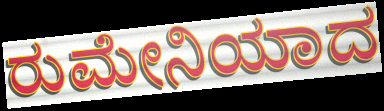
ರುಮೇನಿಯಾದ